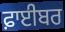
ਫ਼ਾਈਬਰ